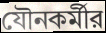
যৌনকর্মীর